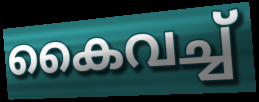
കൈവച്ച്